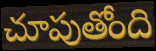
చూపుతోంది